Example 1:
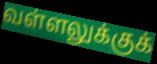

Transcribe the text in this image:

வள்ளலுக்குக்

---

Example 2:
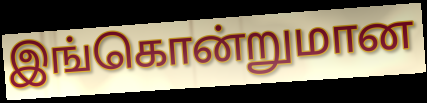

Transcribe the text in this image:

இங்கொன்றுமான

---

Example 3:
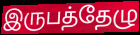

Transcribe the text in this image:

இருபத்தேழு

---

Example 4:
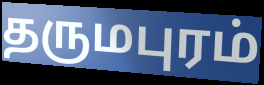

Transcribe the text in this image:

தருமபுரம்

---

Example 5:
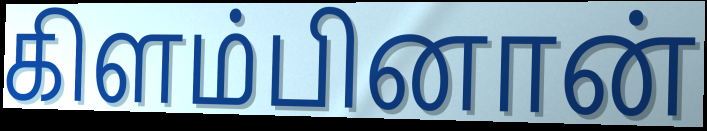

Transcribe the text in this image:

கிளம்பினான்